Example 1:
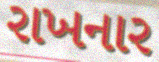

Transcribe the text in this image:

રાખનાર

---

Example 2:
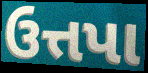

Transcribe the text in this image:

ઉત્તપા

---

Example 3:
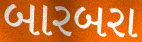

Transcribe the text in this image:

બારબરા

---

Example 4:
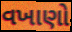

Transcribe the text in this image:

વખાણો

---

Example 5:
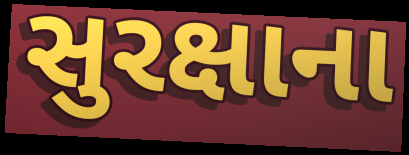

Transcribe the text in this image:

સુરક્ષાના